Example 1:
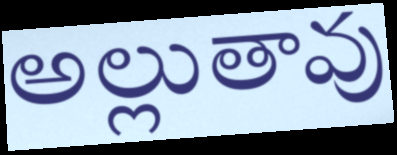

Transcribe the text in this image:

అల్లుతావు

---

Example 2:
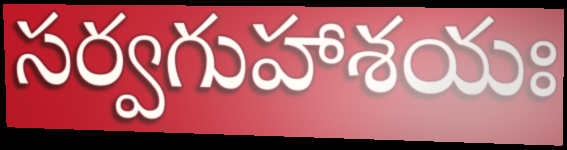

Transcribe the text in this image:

సర్వగుహాశయః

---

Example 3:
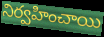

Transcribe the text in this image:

నిర్వహించాయి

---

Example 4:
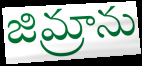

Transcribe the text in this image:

జిమ్రాను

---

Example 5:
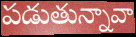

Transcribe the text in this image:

పడుతున్నావా